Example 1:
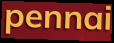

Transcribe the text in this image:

pennai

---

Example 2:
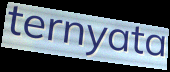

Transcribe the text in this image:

ternyata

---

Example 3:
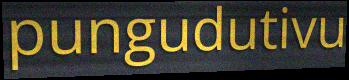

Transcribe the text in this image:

pungudutivu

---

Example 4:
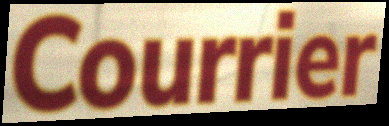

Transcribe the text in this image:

Courrier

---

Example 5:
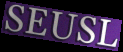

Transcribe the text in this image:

SEUSL